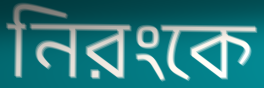
নিরংকে